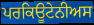
ਪਰਕਿਊਟੇਨੀਅਸ